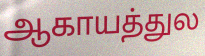
ஆகாயத்துல